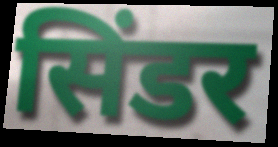
सिंडर